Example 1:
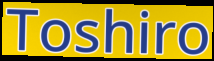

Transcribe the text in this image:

Toshiro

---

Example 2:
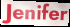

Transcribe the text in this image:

Jenifer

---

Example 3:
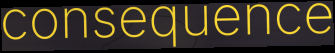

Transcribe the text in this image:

consequence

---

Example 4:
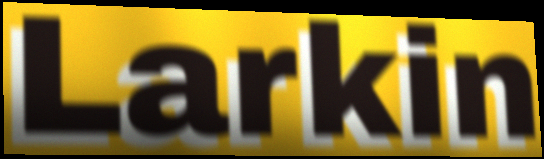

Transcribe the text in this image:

Larkin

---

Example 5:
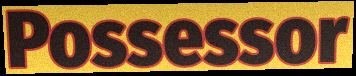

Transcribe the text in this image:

Possessor